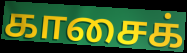
காசைக்